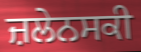
ਜ਼ਲੇਨਸਕੀ